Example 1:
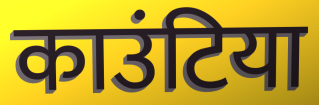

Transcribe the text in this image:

काउंटिया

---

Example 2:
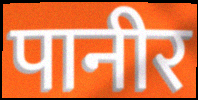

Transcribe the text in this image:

पानीर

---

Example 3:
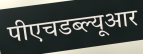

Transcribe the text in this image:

पीएचडब्ल्यूआर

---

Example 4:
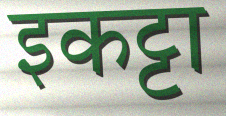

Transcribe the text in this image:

इकट्टा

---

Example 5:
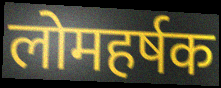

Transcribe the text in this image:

लोमहर्षक